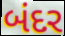
બંદર